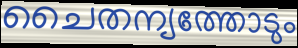
ചൈതന്യത്തോടും